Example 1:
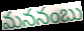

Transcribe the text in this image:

మననంబు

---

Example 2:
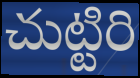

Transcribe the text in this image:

చుట్టిరి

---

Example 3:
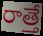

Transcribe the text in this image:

రాత్తే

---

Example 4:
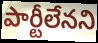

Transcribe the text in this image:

పార్టీలేనని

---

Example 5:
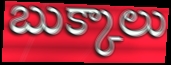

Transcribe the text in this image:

బుక్కాలు